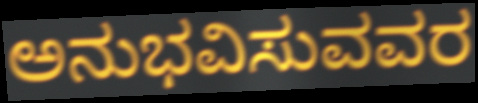
ಅನುಭವಿಸುವವರ